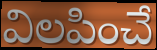
విలపించే